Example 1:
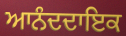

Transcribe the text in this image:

ਆਨੰਦਦਾਇਕ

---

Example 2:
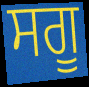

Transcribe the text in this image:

ਸਗੂ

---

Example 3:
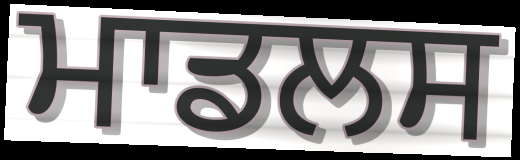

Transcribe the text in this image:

ਮਾਡਲਸ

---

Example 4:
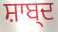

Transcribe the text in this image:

ਸ਼ਾਬ੍ਦ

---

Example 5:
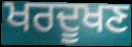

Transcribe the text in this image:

ਖਰਦੂਖਣ